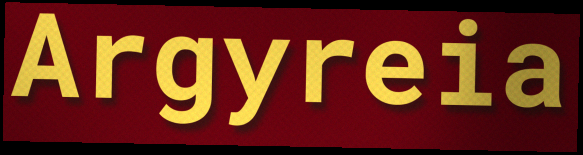
Argyreia